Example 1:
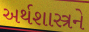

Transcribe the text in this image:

અર્થશાસ્ત્રને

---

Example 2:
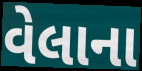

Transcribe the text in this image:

વેલાના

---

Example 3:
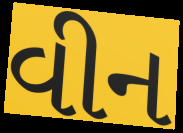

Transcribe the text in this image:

વીન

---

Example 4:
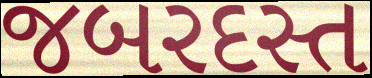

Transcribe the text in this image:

જબરદસ્ત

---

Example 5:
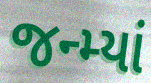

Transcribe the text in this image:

જન્મ્યાં